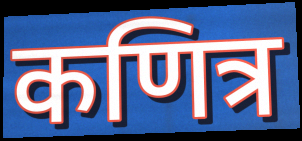
कणित्र